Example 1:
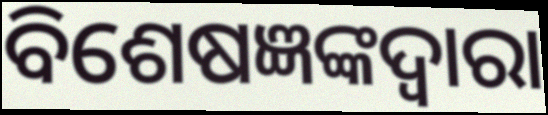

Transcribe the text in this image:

ବିଶେଷଜ୍ଞଙ୍କଦ୍ୱାରା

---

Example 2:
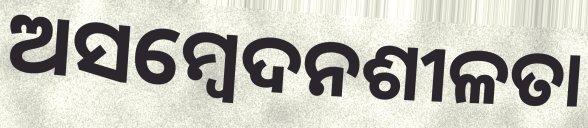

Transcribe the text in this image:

ଅସମ୍ବେଦନଶୀଳତା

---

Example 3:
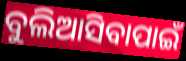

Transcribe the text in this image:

ବୁଲିଆସିବାପାଇଁ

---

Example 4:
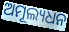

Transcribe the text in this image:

ଅମୂଲ୍ୟଧନ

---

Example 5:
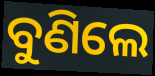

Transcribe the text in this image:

ବୁଣିଲେ